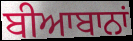
ਬੀਆਬਾਨਾਂ